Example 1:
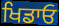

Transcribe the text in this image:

ਖਿਡਾਓ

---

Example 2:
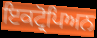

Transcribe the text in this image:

ਇਕਟ੍ਰੋਪਿਅਨ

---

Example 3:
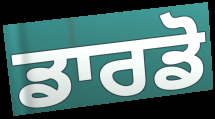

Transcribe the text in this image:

ਡਾਰਡੋ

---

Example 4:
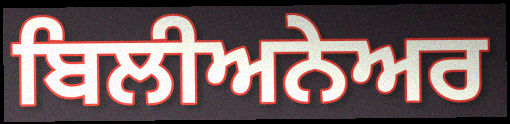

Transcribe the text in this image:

ਬਿਲੀਅਨੇਅਰ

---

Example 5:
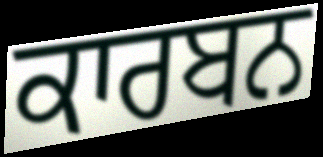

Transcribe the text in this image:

ਕਾਰਬਨ